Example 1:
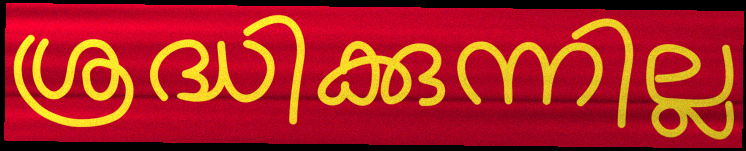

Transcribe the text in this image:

ശ്രദ്ധിക്കുന്നില്ല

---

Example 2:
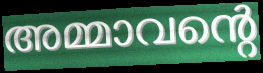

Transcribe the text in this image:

അമ്മാവന്റെ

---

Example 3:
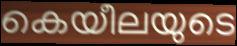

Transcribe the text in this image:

കെയീലയുടെ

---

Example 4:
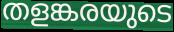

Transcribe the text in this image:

തളങ്കരയുടെ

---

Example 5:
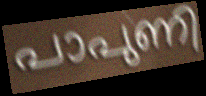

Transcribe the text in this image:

പാപുണി